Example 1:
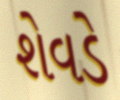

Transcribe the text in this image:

શેવડે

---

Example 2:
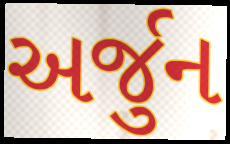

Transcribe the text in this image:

અર્જુન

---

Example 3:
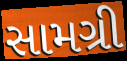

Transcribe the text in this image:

સામગ્રી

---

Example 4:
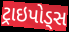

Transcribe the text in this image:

ટ્રાઇપોડ્સ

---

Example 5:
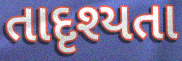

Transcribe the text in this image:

તાદૃશ્યતા